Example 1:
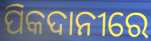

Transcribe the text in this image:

ପିକଦାନୀରେ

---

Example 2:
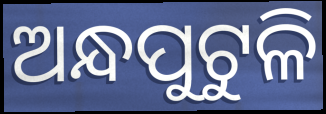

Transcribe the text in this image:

ଅନ୍ଧପୁଟୁଳି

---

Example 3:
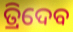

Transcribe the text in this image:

ତ୍ରିଦେବ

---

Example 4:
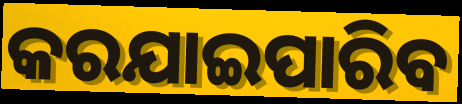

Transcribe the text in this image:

କରଯାଇପାରିବ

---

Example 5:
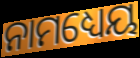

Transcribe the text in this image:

ନାମଧ୍ୟେୟ